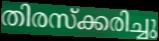
തിരസ്ക്കരിച്ചു